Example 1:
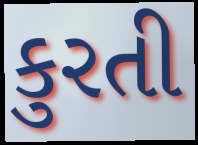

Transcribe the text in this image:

કુરતી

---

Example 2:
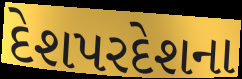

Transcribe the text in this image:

દેશપરદેશના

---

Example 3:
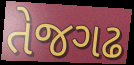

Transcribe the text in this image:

તેજગઢ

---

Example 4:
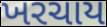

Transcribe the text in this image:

ખરચાય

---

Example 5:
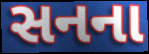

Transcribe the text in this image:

સનના